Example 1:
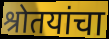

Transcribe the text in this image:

श्रोतयांचा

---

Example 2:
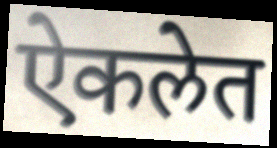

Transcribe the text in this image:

ऐकलेत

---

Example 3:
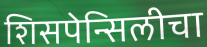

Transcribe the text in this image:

शिसपेन्सिलीचा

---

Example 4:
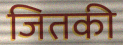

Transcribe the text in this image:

जितकी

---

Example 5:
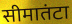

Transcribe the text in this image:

सीमातंटा